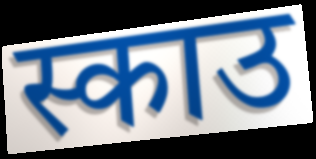
स्काउ